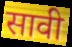
सावी